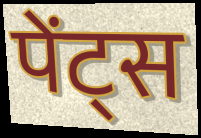
पेंट्स